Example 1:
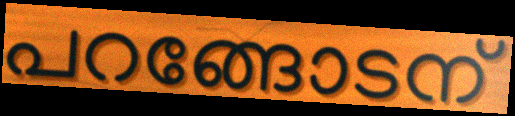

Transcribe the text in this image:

പറങ്ങോടന്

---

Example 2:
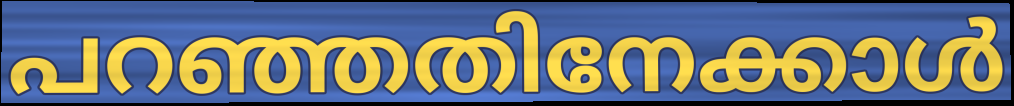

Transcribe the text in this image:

പറഞ്ഞതിനേക്കാൾ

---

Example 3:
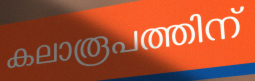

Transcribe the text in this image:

കലാരൂപത്തിന്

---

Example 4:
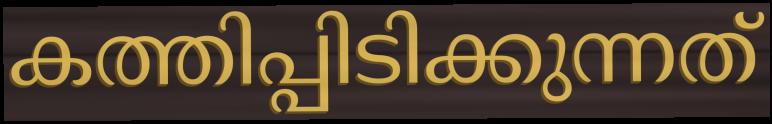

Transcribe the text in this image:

കത്തിപ്പിടിക്കുന്നത്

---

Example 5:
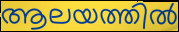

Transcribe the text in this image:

ആലയത്തിൽ